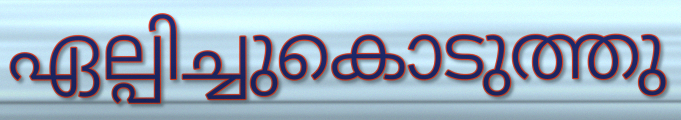
ഏല്പിച്ചുകൊടുത്തു